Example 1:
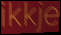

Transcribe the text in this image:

ikkje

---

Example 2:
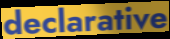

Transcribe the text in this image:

declarative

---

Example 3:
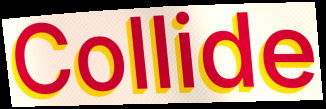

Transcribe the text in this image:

Collide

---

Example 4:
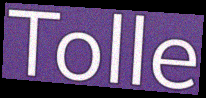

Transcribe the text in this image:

Tolle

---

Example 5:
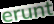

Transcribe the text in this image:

erunt